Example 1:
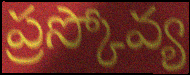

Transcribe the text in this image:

ప్రస్కోవ్య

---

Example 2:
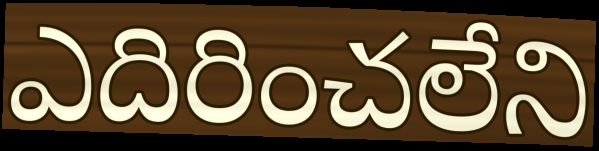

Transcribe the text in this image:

ఎదిరించలేని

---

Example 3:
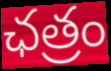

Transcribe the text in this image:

ఛత్రం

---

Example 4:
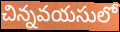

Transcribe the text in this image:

చిన్నవయసులో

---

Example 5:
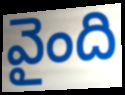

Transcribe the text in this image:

వైంది